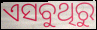
ଏସବୁଥିରୁ